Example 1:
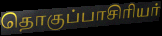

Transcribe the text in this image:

தொகுப்பாசிரியர்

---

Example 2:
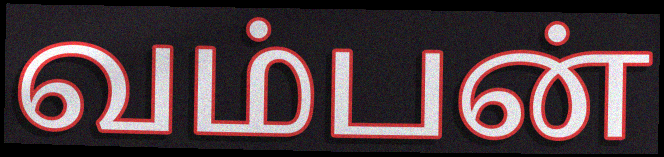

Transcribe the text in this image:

வம்பன்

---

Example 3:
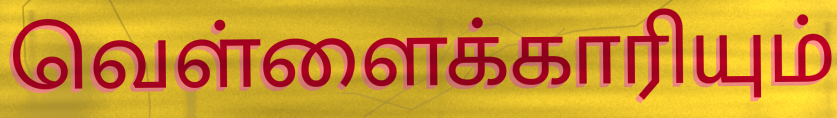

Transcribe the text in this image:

வெள்ளைக்காரியும்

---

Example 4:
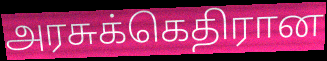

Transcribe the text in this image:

அரசுக்கெதிரான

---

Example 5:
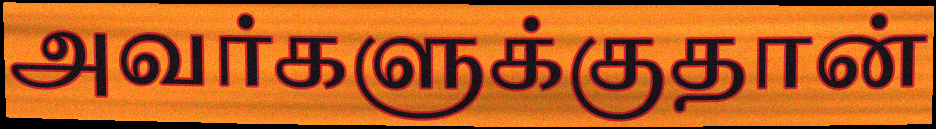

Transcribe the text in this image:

அவர்களுக்குதான்